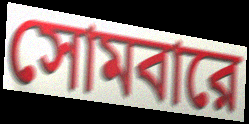
সোমবারে